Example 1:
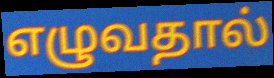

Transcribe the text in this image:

எழுவதால்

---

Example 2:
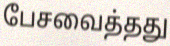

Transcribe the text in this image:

பேசவைத்தது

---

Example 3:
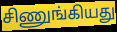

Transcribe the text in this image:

சிணுங்கியது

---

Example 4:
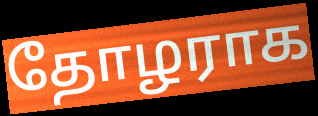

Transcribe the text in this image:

தோழராக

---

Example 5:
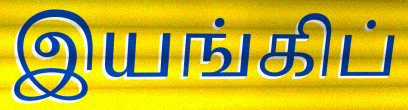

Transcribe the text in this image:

இயங்கிப்